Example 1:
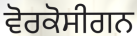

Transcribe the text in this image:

ਵੋਰਕੋਸੀਗਨ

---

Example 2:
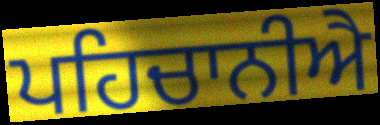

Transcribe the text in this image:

ਪਹਿਚਾਨੀਐ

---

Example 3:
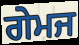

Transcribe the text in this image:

ਗੇਮਜ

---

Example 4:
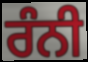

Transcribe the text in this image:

ਰੰਨੀ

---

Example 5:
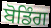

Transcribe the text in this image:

ਬੋਡਿੰਗ